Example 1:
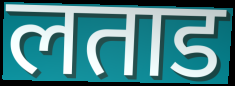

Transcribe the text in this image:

लताड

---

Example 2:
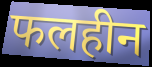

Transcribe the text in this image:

फलहीन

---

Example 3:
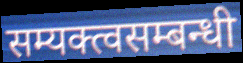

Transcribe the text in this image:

सम्यक्त्वसम्बन्धी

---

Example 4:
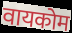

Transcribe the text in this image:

वायकोम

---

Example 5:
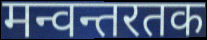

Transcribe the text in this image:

मन्वन्तरतक